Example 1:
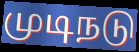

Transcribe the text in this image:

முடிநடு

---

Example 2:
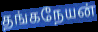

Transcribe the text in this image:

தங்கநேயன்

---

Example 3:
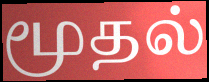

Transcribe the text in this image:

மூதல்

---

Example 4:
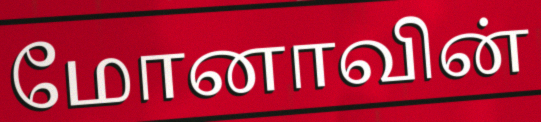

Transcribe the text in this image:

மோனாவின்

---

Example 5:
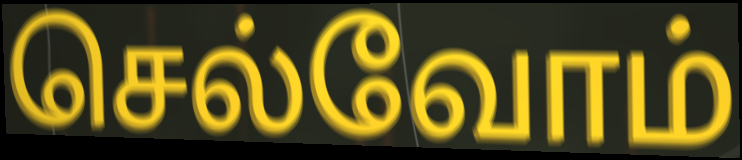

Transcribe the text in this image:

செல்வோம்